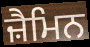
ਜ਼ੈਮਿਨ